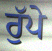
ਰੁੱਪੇ